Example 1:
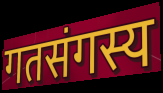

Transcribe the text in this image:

गतसंगस्य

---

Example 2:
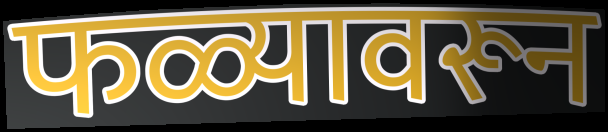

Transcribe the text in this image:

फळ्यावरून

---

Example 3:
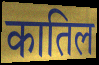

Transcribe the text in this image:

कातिल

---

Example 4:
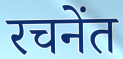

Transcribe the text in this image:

रचनेंत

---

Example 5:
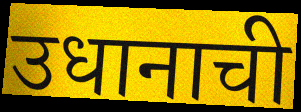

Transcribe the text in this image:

उधानाची